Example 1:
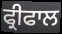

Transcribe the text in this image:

ਫ੍ਰੀਫਾਲ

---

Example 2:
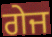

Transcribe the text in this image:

ਗੇਜ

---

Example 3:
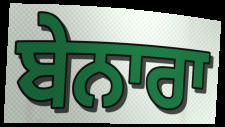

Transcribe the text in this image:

ਬੇਨਾਰਾ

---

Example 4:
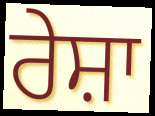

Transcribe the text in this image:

ਰੇਸ਼ਾ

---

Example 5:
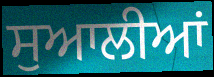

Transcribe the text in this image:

ਸੁਆਲੀਆਂ